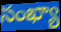
సంఖ్యా